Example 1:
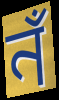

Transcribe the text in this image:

নঁ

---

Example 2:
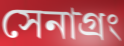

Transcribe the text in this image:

সেনাগ্রং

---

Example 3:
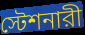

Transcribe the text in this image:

স্টেশনারী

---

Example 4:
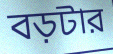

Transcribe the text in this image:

বড়টার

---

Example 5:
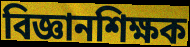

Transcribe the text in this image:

বিজ্ঞানশিক্ষক